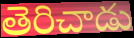
తెరిచాడు